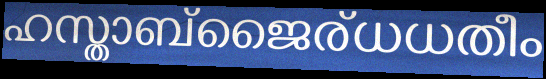
ഹസ്താബ്ജൈര്ധധതീം